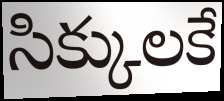
సిక్కులకే